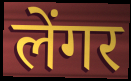
लेंगर